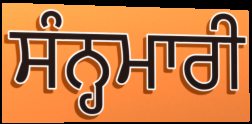
ਸੰਨ੍ਹਮਾਰੀ